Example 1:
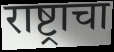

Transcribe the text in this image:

राष्ट्राचा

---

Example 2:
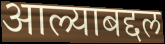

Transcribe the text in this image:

आल्याबद्दल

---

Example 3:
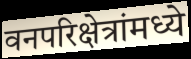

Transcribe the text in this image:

वनपरिक्षेत्रांमध्ये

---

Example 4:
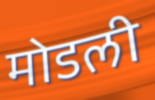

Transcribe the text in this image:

मोडली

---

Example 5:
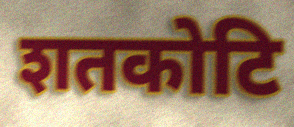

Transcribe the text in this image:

शतकोटि